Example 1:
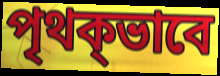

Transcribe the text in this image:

পৃথক্ভাবে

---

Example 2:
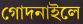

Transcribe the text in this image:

গোদনাইলে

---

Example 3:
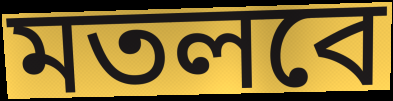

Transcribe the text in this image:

মতলবে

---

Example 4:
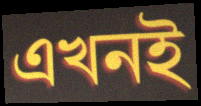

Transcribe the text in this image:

এখনই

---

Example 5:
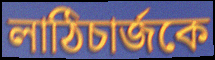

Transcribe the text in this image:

লাঠিচার্জকে